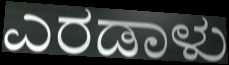
ಎರಡಾಳು